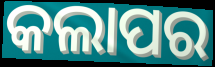
କଲାପର